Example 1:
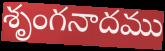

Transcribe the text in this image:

శృంగనాదము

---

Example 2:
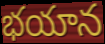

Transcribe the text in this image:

భయాన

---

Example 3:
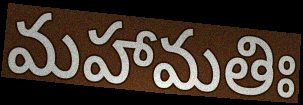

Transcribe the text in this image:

మహామతిః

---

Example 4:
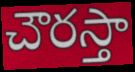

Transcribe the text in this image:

చౌరస్తా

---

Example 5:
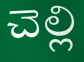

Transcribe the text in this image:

చెల్లి